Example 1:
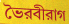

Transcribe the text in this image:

ভৈরবীরাগ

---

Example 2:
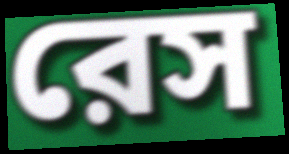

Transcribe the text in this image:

রেস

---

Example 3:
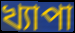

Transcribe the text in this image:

খ্যাপা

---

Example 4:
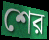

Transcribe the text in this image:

শের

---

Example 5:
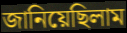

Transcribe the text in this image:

জানিয়েছিলাম